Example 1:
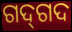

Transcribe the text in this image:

ଗଦ୍‍ଗଦ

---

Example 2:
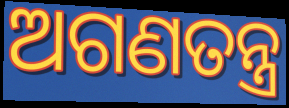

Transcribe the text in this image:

ଅଗଣତନ୍ତ୍ର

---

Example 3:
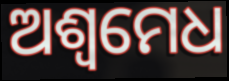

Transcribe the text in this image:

ଅଶ୍ବମେଧ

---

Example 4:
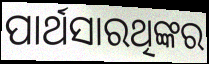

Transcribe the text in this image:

ପାର୍ଥସାରଥିଙ୍କର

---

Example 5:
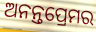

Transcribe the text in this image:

ଅନନ୍ତପ୍ରେମର